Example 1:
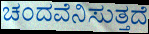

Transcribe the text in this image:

ಚಂದವೆನಿಸುತ್ತದೆ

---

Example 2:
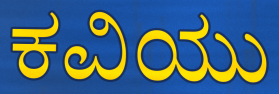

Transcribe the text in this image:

ಕವಿಯು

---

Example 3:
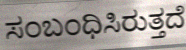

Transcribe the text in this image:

ಸಂಬಂಧಿಸಿರುತ್ತದೆ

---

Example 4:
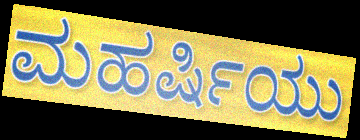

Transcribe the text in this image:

ಮಹರ್ಷಿಯು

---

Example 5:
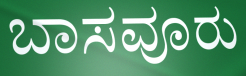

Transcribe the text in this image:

ಬಾಸವೂರು